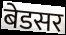
बेडसर